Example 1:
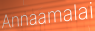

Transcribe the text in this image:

Annaamalai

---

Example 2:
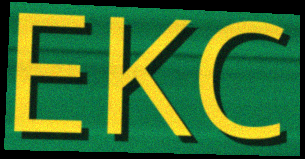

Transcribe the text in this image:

EKC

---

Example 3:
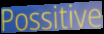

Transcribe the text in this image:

Possitive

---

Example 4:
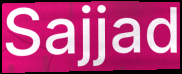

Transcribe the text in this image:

Sajjad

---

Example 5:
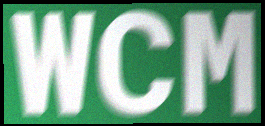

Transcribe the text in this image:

WCM